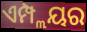
ଏମ୍ପ୍ଲୟର